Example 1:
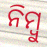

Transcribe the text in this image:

ନିମ୍ବୁ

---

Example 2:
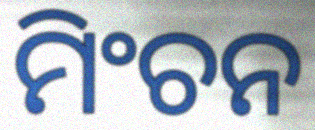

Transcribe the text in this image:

ମିଂଚନ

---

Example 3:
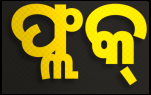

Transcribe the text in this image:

ଫ୍ଲକ୍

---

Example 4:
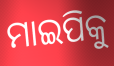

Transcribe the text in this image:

ମାଇପିକୁ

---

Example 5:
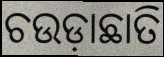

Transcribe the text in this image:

ଚଉଡ଼ାଛାତି